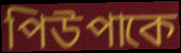
পিউপাকে